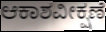
ಆಕಾಶವೀಕ್ಷಣೆ